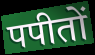
पपीतों